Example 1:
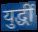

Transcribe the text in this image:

युद्धीं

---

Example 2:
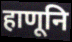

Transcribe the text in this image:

हाणूनि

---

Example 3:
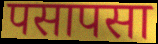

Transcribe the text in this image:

पसापसा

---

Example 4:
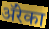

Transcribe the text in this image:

ॲरेका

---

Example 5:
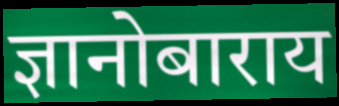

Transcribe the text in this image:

ज्ञानोबाराय